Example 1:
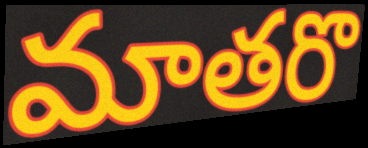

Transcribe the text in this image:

మాతరొ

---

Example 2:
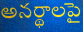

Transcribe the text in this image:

అనర్థాలపై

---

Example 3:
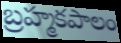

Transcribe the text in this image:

బ్రహ్మకపాలం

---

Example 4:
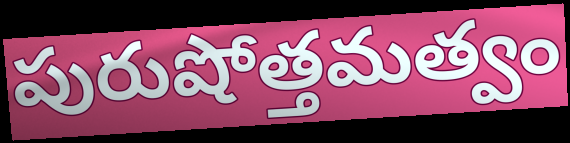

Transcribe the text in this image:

పురుషోత్తమత్వం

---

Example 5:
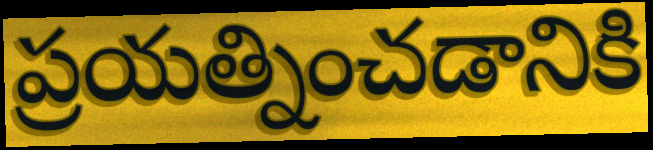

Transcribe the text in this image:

ప్రయత్నించడానికి